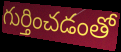
గుర్తించడంతో